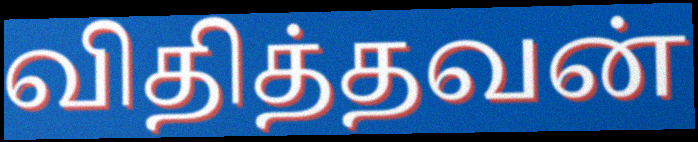
விதித்தவன்